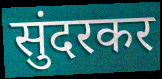
सुंदरकर